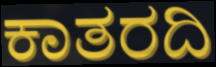
ಕಾತರದಿ